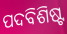
ପଦବିଶିଷ୍ଟ